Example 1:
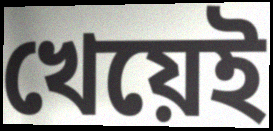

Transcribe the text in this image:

খেয়েই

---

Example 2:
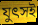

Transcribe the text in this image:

যুৎসই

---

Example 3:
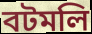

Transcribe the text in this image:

বটমলি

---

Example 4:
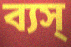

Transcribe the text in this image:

ব্যস্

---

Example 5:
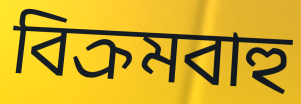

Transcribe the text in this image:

বিক্রমবাহু